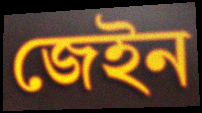
জেইন